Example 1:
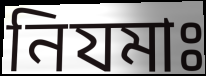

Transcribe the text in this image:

নিযমাঃ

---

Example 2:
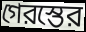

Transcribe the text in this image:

গেরস্তের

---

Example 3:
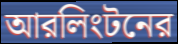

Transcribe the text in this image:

আরলিংটনের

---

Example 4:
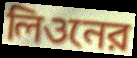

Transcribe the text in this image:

লিওনের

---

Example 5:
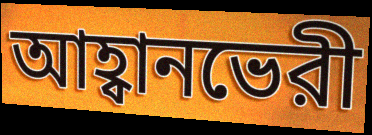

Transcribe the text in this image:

আহ্বানভেরী